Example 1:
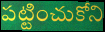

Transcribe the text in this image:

పట్టించుకోని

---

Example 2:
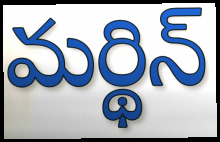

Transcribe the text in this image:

మర్థిన్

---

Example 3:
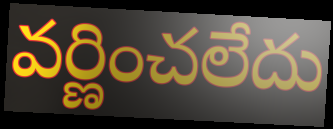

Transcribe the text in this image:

వర్ణించలేదు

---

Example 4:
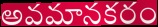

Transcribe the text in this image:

అవమానకరం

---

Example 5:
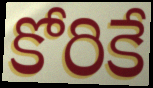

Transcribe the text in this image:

కోరికే